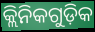
କ୍ଲିନିକଗୁଡ଼ିକ